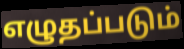
எழுதப்படும்